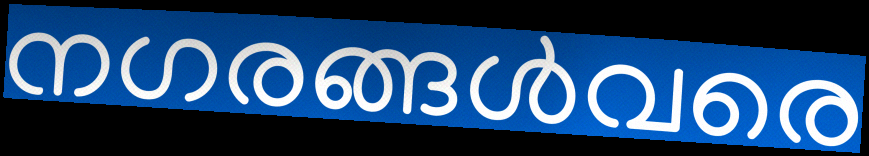
നഗരങ്ങൾവരെ